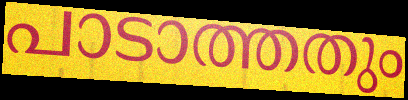
പാടാത്തതും